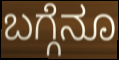
ಬಗ್ಗೆನೂ